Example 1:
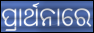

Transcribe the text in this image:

ପ୍ରାର୍ଥନାରେ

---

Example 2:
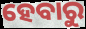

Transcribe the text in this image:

ହେବାରୁ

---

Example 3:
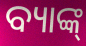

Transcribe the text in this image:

ବ୍ୟାଙ୍କ୍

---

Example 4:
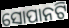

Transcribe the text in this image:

ସୋପାନଟି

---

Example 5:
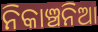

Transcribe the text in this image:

ନିକାଞ୍ଚନିଆ